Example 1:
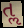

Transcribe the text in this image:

તૢ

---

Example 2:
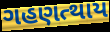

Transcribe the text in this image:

ગહણત્થાય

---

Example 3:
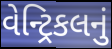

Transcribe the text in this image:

વેન્ટ્રિકલનું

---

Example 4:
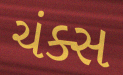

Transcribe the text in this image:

ચંક્સ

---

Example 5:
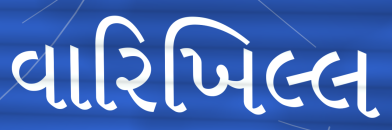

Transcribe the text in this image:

વારિખિલ્લ